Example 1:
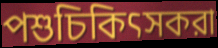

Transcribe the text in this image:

পশুচিকিৎসকরা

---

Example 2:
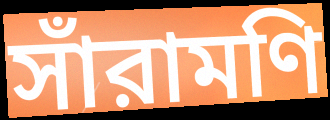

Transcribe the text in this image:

সাঁরামণি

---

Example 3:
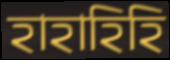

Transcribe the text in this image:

হাহাহিহি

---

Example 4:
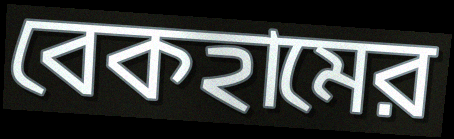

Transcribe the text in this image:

বেকহামের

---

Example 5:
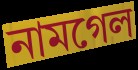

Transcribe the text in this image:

নামগেল